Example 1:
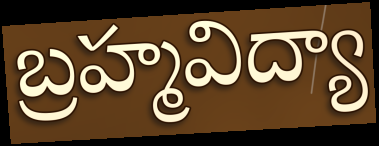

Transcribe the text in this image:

బ్రహ్మవిద్యా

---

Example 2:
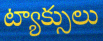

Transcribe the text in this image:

ట్యాక్సులు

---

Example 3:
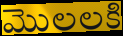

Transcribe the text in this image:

మొలలకి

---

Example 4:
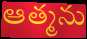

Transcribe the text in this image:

ఆత్మను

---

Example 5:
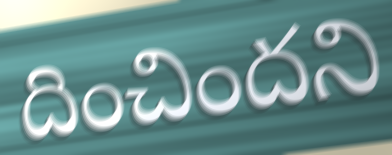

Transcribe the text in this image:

దించిందని